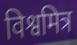
विश्वमित्र